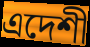
এদেশী